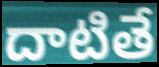
దాటితే